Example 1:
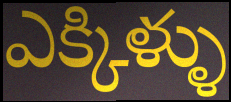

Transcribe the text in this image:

ఎక్కిళ్ళు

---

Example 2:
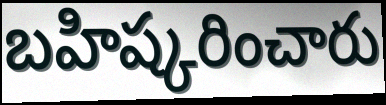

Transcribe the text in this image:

బహిష్కరించారు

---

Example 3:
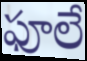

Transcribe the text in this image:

ఫూలే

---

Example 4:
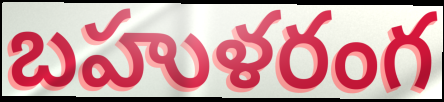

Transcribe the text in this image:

బహుళరంగ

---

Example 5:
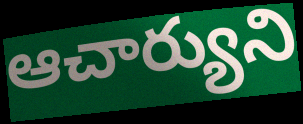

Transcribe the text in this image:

ఆచార్యుని